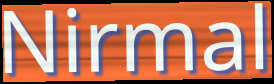
Nirmal